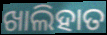
ଖାଲିହାତ